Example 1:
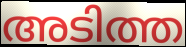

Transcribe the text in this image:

അടിത്ത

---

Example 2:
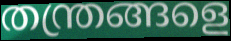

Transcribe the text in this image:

തന്ത്രങ്ങളെ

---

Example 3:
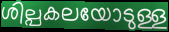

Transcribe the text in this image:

ശില്പകലയോടുള്ള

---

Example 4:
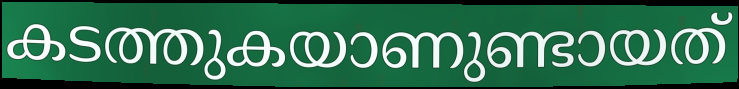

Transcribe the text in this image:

കടത്തുകയാണുണ്ടായത്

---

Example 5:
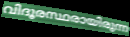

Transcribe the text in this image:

വിദൂരസ്ഥരായിരുന്ന